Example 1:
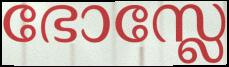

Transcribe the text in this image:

ഭോസ്ലേ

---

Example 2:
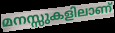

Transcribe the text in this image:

മനസ്സുകളിലാണ്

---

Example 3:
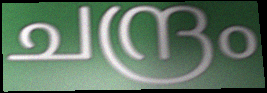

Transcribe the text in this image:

ചന്ദ്രം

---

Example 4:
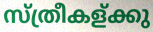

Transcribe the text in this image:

സ്ത്രീകള്ക്കു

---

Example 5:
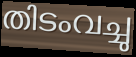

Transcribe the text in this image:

തിടംവച്ചു